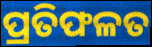
ପ୍ରତିଫଳତ